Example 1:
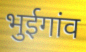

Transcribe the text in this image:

भुईगांव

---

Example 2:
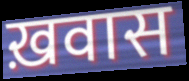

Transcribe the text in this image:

ख़वास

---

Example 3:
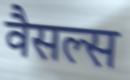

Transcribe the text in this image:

वैसल्स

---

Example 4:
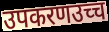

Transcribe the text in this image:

उपकरणउच्च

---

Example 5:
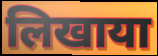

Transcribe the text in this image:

लिखाया